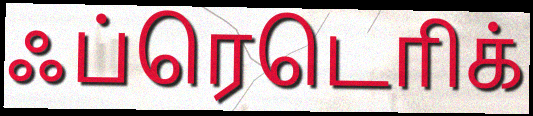
ஃப்ரெடெரிக்